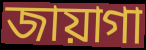
জায়াগা